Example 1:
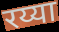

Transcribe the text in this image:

रय्या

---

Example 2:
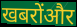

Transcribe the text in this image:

खबरोंऔर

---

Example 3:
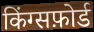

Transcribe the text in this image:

किंग्सफ़ोर्ड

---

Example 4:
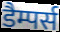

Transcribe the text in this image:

डैम्पर्स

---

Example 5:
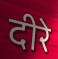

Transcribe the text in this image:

दीरे